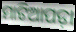
ମାଟିଆପଡ଼ା